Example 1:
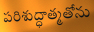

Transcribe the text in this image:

పరిశుద్ధాత్మతోను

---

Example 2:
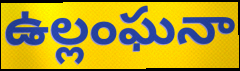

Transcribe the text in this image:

ఉల్లంఘనా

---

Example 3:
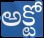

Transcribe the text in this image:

అక్టో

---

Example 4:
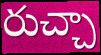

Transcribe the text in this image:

రుచ్చా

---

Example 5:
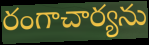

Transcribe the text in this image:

రంగాచార్యను